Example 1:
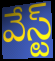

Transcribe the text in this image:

వేస్ట్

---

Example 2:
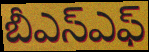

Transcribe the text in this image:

బీఎస్ఎఫ్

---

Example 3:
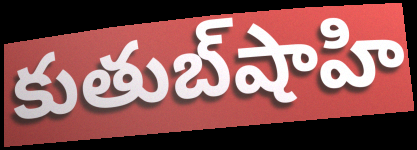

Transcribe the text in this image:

కుతుబ్‌షాహి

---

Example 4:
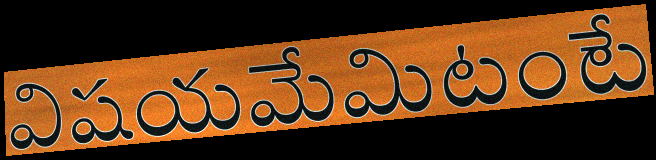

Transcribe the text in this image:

విషయమేమిటంటే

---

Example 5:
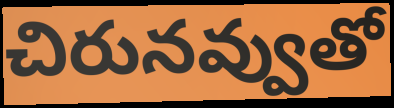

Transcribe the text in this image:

చిరునవ్వుతో